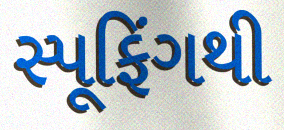
સ્પૂફિંગથી